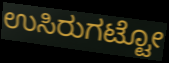
ಉಸಿರುಗಟ್ಟೋ